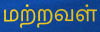
மற்றவள்